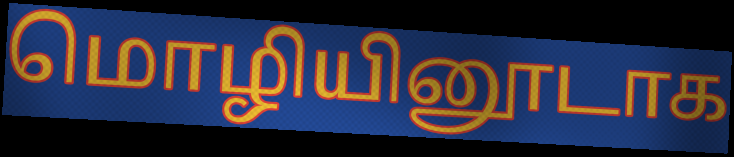
மொழியினூடாக